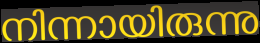
നിന്നായിരുന്നു